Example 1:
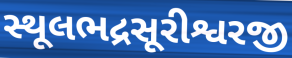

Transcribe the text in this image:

સ્થૂલભદ્રસૂરીશ્વરજી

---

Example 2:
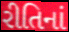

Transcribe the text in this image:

રીતિનાં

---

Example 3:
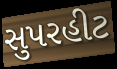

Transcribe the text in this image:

સુપરહીટ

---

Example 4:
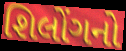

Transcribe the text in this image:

શિલોંગનો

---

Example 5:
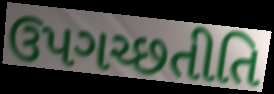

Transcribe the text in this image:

ઉપગચ્છતીતિ